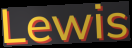
Lewis